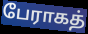
பேராகத்